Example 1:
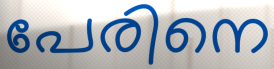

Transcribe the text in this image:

പേരിനെ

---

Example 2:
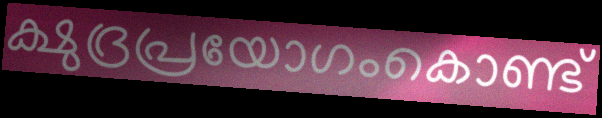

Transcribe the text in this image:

ക്ഷുദ്രപ്രയോഗംകൊണ്ട്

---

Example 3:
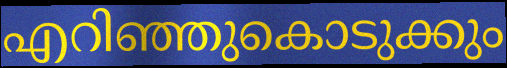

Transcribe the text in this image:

എറിഞ്ഞുകൊടുക്കും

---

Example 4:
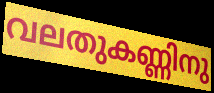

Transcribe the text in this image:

വലതുകണ്ണിനു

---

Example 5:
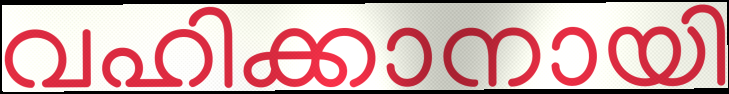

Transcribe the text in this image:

വഹിക്കാനായി